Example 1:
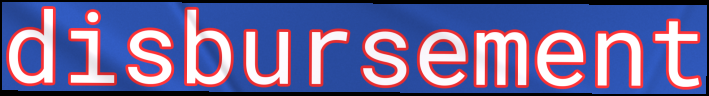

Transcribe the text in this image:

disbursement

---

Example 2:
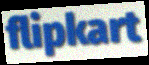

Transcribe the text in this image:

flipkart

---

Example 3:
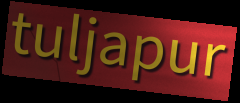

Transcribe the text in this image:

tuljapur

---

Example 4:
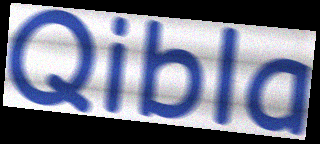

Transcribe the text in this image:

Qibla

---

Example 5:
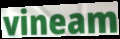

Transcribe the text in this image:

vineam